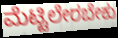
ಮೆಟ್ಟಿಲೇರಬೇಕು